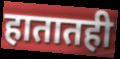
हातातही